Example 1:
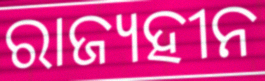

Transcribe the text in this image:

ରାଜ୍ୟହୀନ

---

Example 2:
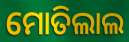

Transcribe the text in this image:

ମୋତିଲାଲ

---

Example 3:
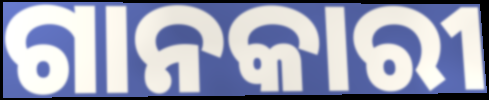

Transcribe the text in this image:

ଗାନକାରୀ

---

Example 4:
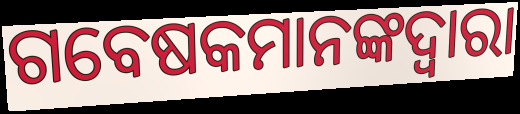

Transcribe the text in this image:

ଗବେଷକମାନଙ୍କଦ୍ୱାରା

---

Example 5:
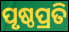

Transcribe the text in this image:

ପୃଷ୍ଠପ୍ରତି